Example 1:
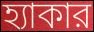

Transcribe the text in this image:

হ্যাকার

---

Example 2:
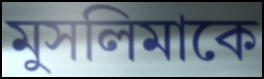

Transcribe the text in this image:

মুসলিমাকে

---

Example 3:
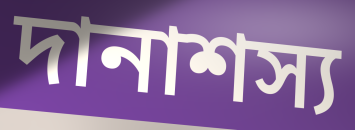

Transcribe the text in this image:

দানাশস্য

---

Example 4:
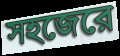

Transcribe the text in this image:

সহজেরে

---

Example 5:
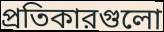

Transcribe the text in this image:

প্রতিকারগুলো